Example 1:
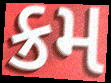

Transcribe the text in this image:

ક્રમ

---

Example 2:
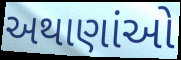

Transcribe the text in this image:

અથાણાંઓ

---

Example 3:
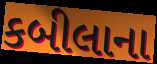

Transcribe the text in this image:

કબીલાના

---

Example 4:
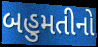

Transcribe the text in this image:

બહુમતીનો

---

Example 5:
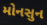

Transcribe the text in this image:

મોનસુન